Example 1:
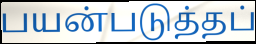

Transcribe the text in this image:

பயன்படுத்தப்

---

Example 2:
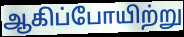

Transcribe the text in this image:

ஆகிப்போயிற்று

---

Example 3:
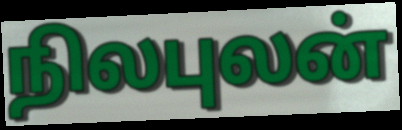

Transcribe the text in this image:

நிலபுலன்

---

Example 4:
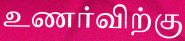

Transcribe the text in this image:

உணர்விற்கு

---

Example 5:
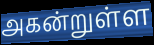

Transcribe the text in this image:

அகன்றுள்ள